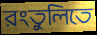
রংতুলিতে